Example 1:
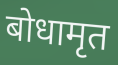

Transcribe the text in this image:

बोधामृत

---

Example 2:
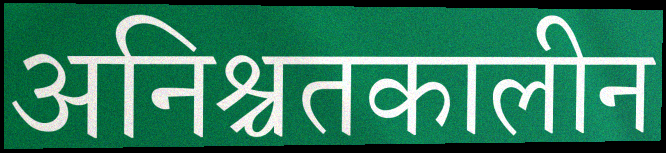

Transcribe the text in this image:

अनिश्चतकालीन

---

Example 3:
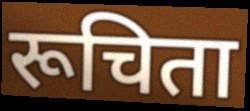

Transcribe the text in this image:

रूचिता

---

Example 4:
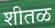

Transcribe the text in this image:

शीतळ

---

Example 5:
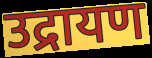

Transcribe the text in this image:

उद्रायण